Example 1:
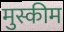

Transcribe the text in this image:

मुस्कीम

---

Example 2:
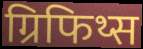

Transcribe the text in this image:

ग्रिफिथ्स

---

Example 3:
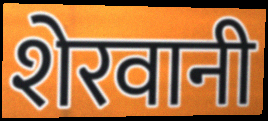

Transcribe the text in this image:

शेरवानी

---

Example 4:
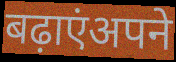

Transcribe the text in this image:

बढ़ाएंअपने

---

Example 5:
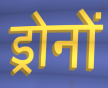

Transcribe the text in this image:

ड्रोनों